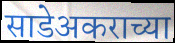
साडेअकराच्या